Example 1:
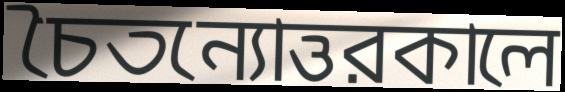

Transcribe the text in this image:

চৈতন্যোত্তরকালে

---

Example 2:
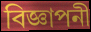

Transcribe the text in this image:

বিজ্ঞাপনী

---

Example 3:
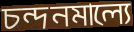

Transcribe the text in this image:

চন্দনমাল্যে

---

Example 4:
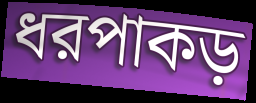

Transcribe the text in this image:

ধরপাকড়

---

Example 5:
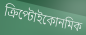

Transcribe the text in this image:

ক্রিপ্টোইকোনমিক